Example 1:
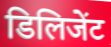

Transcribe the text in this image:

डिलिजेंट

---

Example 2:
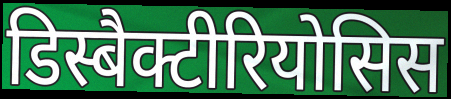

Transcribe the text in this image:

डिस्बैक्टीरियोसिस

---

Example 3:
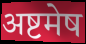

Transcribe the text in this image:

अष्टमेष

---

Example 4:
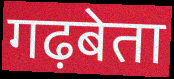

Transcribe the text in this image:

गढ़बेता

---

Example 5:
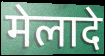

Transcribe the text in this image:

मेलादे